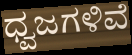
ಧ್ವಜಗಳಿವೆ